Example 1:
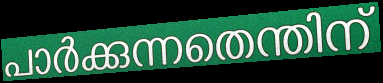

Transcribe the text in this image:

പാർക്കുന്നതെന്തിന്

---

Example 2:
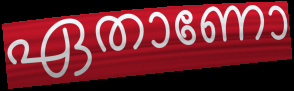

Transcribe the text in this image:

ഏതാണോ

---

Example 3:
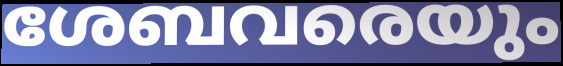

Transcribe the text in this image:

ശേബവരെയും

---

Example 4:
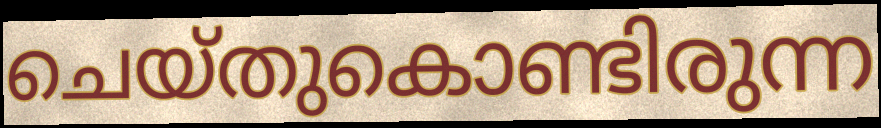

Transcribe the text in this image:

ചെയ്തുകൊണ്ടിരുന്ന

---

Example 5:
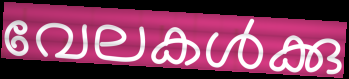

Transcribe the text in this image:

വേലകൾക്കു